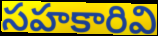
సహకారివి